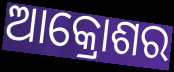
ଆକ୍ରୋଶର